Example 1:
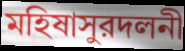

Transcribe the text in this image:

মহিষাসুরদলনী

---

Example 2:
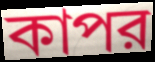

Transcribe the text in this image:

কাপর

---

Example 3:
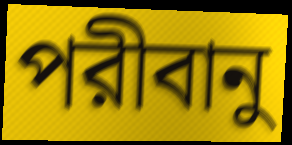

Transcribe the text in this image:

পরীবানু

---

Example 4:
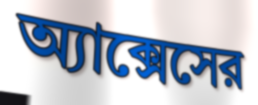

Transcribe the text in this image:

অ্যাক্সেসের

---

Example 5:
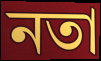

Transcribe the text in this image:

নতা